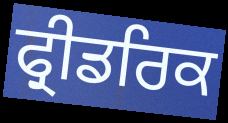
ਫ੍ਰੀਡਰਿਕ